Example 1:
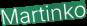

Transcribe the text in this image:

Martinko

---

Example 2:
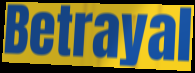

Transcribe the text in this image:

Betrayal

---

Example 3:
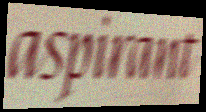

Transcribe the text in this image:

aspirant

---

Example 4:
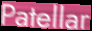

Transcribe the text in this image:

Patellar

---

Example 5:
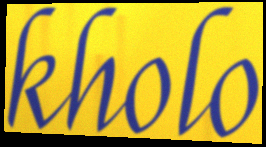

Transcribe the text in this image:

kholo